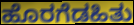
ಹೊರಗೆಡಹಿತು